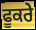
ਫੂਕਰੇ